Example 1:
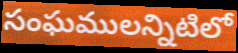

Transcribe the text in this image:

సంఘములన్నిటిలో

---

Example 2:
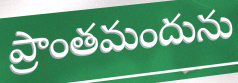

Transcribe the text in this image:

ప్రాంతమందును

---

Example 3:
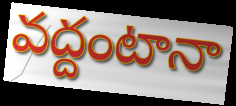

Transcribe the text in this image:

వద్దంటానా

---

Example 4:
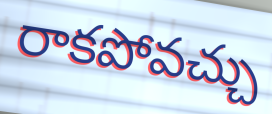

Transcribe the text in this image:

రాకపోవచ్చు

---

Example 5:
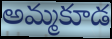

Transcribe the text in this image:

అమ్మకూడ